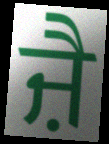
ਜ਼ੈ